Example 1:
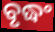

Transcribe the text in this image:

ବୃଦ୍ଧଂ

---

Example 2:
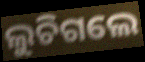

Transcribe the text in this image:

ଲୁଚିଗଲେ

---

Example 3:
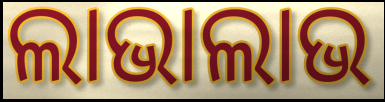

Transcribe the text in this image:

ଲାଭାଲାଭ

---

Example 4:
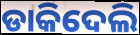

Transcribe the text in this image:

ଡାକିଦେଲି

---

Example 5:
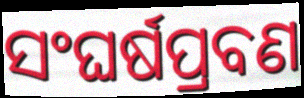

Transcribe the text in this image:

ସଂଘର୍ଷପ୍ରବଣ